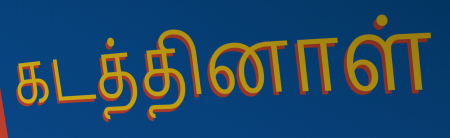
கடத்தினாள்